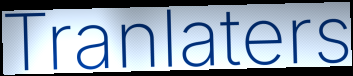
Tranlaters